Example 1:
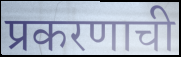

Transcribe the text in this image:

प्रकरणाची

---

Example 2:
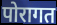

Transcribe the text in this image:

पोरागत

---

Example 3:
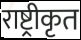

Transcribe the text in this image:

राष्ट्रीकृत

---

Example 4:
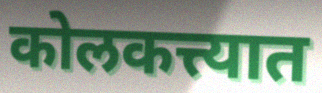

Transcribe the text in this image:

कोलकत्त्यात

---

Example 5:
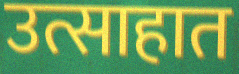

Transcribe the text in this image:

उत्साहात